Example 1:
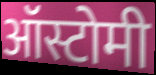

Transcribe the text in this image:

ऑस्टोमी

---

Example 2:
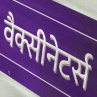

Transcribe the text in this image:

वैक्सीनेटर्स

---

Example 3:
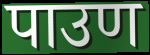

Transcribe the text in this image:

पाउण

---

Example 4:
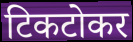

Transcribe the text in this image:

टिकटोकर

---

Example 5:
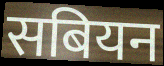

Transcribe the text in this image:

सबियन